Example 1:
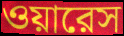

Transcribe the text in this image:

ওয়ারেস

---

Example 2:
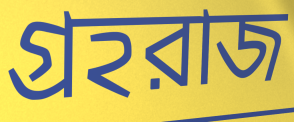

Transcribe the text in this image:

গ্রহরাজ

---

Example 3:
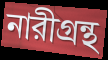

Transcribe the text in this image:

নারীগ্রন্থ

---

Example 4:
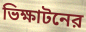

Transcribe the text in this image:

ভিক্ষাটনের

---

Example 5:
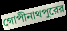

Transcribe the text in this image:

গোপীনাথপুরের